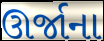
ઊર્જાના